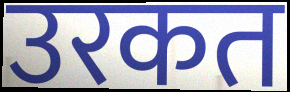
उरकत